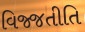
વિજ્જતીતિ